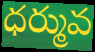
ధర్మువ